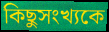
কিছুসংখ্যকে